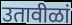
उतावीळां